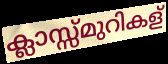
ക്ലാസ്സ്മുറികള്